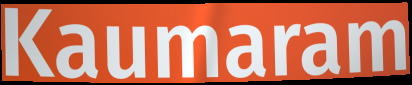
Kaumaram